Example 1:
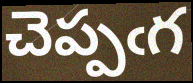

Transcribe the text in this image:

చెప్పఁగ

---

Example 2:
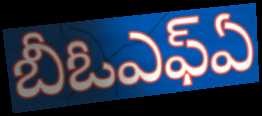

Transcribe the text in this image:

బీఓఎఫ్ఏ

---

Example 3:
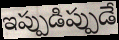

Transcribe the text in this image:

ఇప్పుడిప్పుడే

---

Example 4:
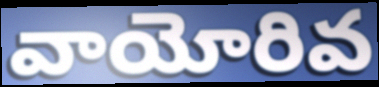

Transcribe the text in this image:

వాయోరివ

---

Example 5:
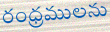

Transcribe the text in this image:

రంధ్రములను